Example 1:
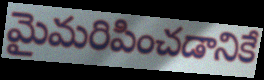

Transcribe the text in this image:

మైమరిపించడానికే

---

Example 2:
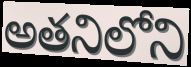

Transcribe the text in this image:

అతనిలోని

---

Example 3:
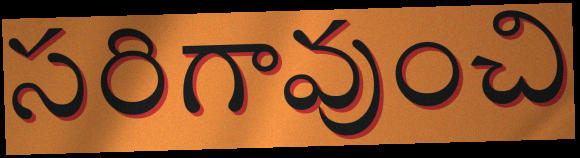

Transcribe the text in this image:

సరిగావుంచి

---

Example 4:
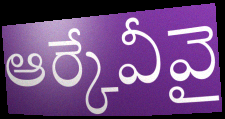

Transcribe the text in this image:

ఆర్కేవీవై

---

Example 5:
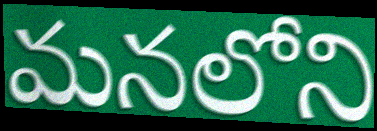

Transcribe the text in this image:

మనలోని